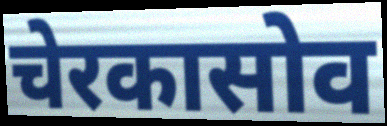
चेरकासोव